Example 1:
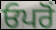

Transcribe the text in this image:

ਓਪਰੋਂ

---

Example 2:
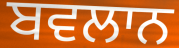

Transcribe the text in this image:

ਬਵਲਾਨ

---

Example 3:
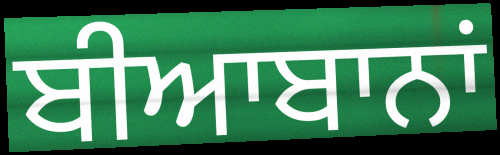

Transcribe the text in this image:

ਬੀਆਬਾਨਾਂ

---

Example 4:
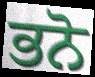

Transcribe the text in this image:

ਭਨੋ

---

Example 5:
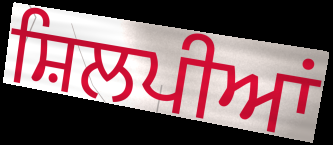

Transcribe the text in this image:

ਸ਼ਿਲਪੀਆਂ